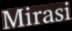
Mirasi